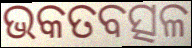
ଭକତବତ୍ସଳ